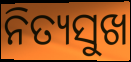
ନିତ୍ୟସୁଖ